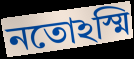
নতোঽস্মি